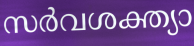
സർവശക്ത്യാ